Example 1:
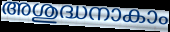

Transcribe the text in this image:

അശുദ്ധനാകാം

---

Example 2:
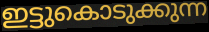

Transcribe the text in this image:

ഇട്ടുകൊടുക്കുന്ന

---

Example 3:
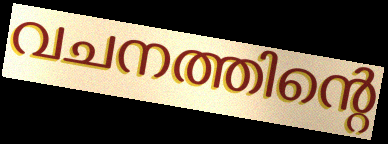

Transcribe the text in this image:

വചനത്തിന്റെ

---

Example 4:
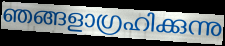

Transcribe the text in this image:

ഞങ്ങളാഗ്രഹിക്കുന്നു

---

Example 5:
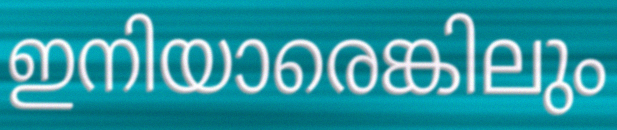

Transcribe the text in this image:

ഇനിയാരെങ്കിലും